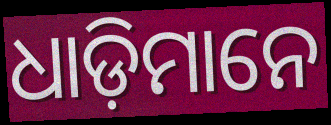
ଧାଡ଼ିମାନେ